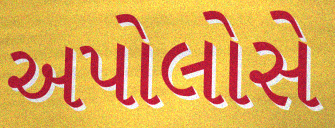
અપોલોસે